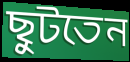
ছুটতেন